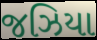
જઝિયા